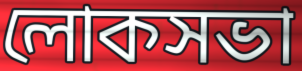
লোকসভা